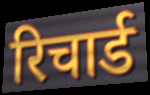
रिचार्ड